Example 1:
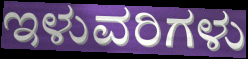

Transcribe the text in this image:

ಇಳುವರಿಗಳು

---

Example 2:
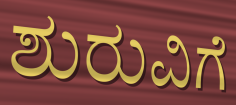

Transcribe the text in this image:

ಶುರುವಿಗೆ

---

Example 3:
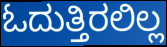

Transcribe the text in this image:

ಓದುತ್ತಿರಲಿಲ್ಲ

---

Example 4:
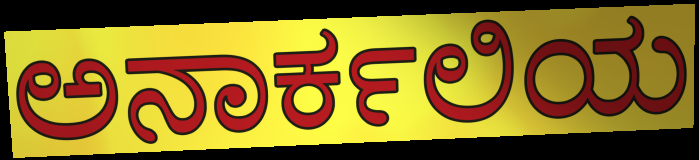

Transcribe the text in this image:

ಅನಾರ್ಕಲಿಯ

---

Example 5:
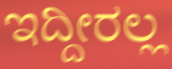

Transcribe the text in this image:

ಇದ್ದೀರಲ್ಲ